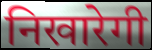
निखारेगी